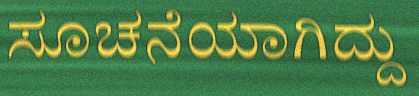
ಸೂಚನೆಯಾಗಿದ್ದು